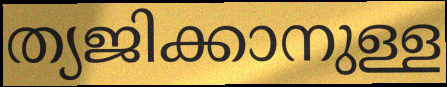
ത്യജിക്കാനുള്ള